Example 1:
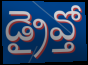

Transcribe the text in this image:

డ్రైవ్తో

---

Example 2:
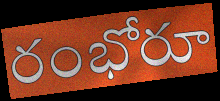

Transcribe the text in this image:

రంభోరూ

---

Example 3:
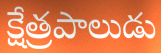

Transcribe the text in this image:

క్షేత్రపాలుడు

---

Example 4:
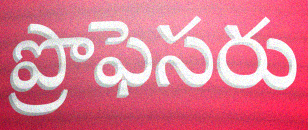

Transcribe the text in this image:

ప్రొఫెసరు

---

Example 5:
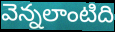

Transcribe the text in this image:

వెన్నలాంటిది